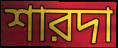
শারদা